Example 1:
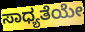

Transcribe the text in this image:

ಸಾಧ್ಯತೆಯೇ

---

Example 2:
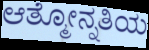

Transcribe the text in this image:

ಆತ್ಮೋನ್ನತಿಯ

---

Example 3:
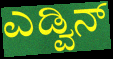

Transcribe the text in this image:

ಎಡ್ವಿನ್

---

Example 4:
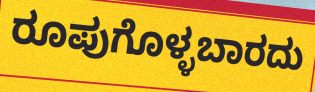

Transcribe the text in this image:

ರೂಪುಗೊಳ್ಳಬಾರದು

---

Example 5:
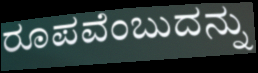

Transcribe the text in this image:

ರೂಪವೆಂಬುದನ್ನು